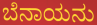
ಬೆನಾಯನು